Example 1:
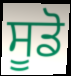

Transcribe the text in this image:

ਸੂਡੋ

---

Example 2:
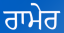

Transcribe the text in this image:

ਰਾਮੇਰ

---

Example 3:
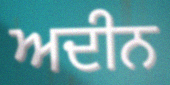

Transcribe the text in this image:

ਅਦੀਨ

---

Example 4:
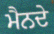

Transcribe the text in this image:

ਮੈਨਦੇ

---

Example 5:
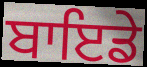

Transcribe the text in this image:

ਬਾਇਡੇ